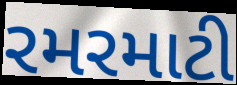
રમરમાટી